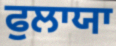
ਫੁਲਾਯਾ